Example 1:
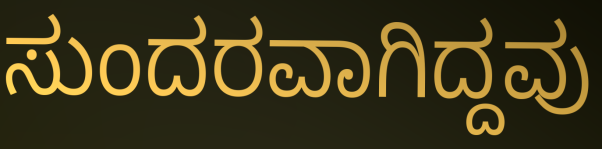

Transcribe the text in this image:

ಸುಂದರವಾಗಿದ್ದವು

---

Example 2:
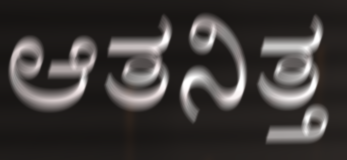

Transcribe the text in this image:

ಆತನಿತ್ತ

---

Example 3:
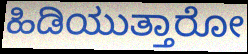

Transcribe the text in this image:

ಹಿಡಿಯುತ್ತಾರೋ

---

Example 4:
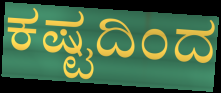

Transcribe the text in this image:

ಕಷ್ಟದಿಂದ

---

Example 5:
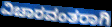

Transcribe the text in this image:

ವಿಚಾರವಂತರಾಗಿ